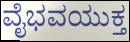
ವೈಭವಯುಕ್ತ